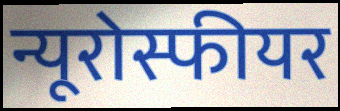
न्यूरोस्फीयर